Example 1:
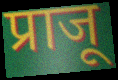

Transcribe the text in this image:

प्राजू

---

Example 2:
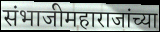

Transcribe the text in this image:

संभाजीमहाराजांच्या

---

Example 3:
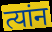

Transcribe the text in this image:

त्यांन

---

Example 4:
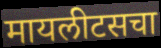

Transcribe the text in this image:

मायलीटसचा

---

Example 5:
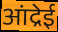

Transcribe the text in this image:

आंद्रेई